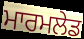
ਮਾਰਮਲੇਡ